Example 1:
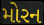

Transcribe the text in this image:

મોરન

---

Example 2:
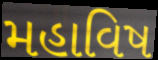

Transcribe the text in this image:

મહાવિષ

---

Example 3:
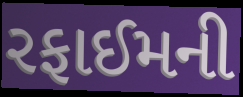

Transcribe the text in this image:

રફાઈમની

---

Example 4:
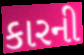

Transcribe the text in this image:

કારની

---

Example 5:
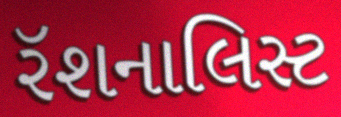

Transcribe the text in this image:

રૅશનાલિસ્ટ